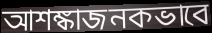
আশঙ্কাজনকভাবে